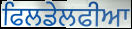
ਫਿਲਡੇਲਫੀਆ